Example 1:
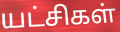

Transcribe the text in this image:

யட்சிகள்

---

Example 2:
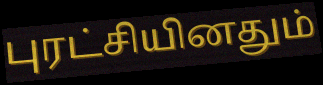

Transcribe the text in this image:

புரட்சியினதும்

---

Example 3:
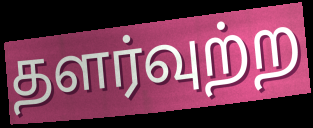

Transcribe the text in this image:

தளர்வுற்ற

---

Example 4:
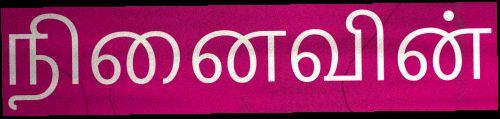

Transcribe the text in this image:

நினைவின்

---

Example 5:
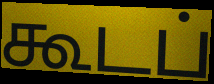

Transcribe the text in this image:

கூடப்